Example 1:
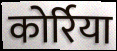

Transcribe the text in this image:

कोर्रिया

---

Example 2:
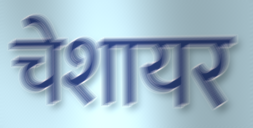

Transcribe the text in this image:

चेशायर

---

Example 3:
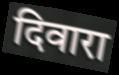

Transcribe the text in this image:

दिवारा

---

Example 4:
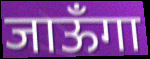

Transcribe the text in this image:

जाऊँगा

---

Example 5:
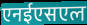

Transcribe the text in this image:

एनईएसएल